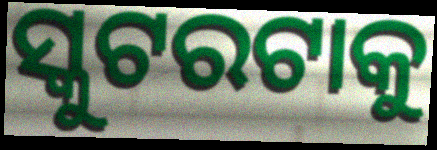
ସ୍କୁଟରଟାକୁ